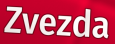
Zvezda